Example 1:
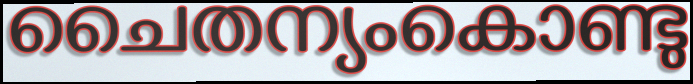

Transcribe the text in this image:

ചൈതന്യംകൊണ്ടു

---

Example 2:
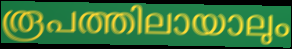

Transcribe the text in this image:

രൂപത്തിലായാലും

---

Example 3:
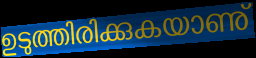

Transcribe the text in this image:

ഉടുത്തിരിക്കുകയാണു്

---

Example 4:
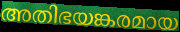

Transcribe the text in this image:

അതിഭയങ്കരമായ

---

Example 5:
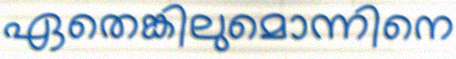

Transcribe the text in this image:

ഏതെങ്കിലുമൊന്നിനെ